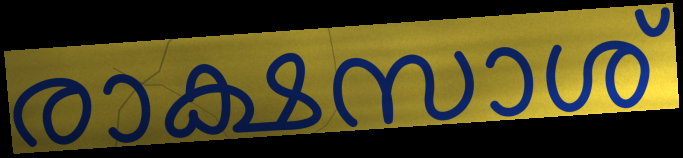
രാക്ഷസാശ്